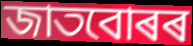
জাতবোৰৰ